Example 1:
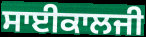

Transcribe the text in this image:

ਸਾਈਕਾਲਜੀ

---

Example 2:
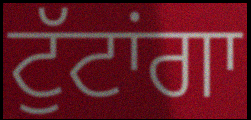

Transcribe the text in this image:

ਟੁੱਟਾਂਗਾ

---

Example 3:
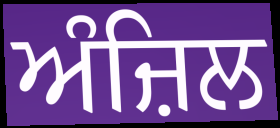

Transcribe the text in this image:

ਅੰਜ਼ਿਲ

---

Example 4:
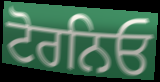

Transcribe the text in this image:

ਟੋਰਨਿਓ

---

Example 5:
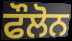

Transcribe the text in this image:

ਫੌਲੋਨ